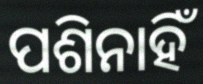
ପଶିନାହିଁ